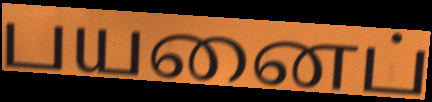
பயனைப்